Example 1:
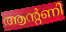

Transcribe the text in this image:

ആന്റണി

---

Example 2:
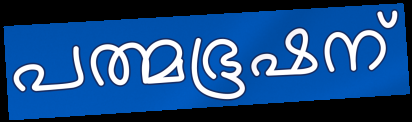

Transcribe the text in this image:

പത്മഭൂഷന്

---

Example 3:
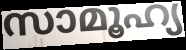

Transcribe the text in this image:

സാമൂഹ്യ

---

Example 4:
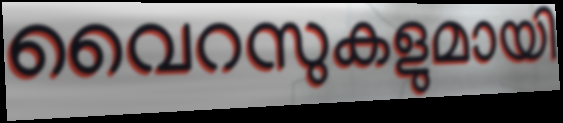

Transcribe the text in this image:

വൈറസുകളുമായി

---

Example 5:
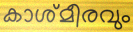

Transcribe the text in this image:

കാശ്മീരവും